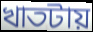
খাতটায়